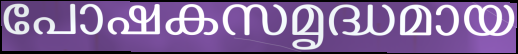
പോഷകസമൃദ്ധമായ